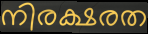
നിരക്ഷരത